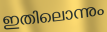
ഇതിലൊന്നും